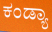
ಕಂಡ್ಯಾ